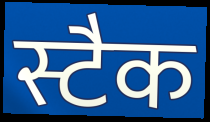
स्‍टैक